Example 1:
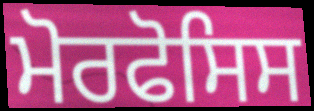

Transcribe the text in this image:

ਮੋਰਫੋਸਿਸ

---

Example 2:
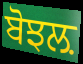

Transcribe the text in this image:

ਬੋਝਲ਼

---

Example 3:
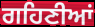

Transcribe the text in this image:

ਗਹਿਣੀਆਂ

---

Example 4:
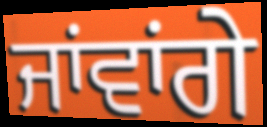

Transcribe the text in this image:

ਜਾਂਵਾਂਗੇ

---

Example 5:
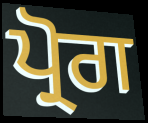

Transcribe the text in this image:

ਪ੍ਰੋਗ